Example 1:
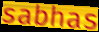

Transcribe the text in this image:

sabhas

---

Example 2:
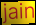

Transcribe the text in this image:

jain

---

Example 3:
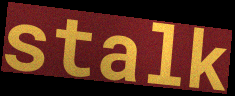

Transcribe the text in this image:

stalk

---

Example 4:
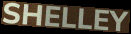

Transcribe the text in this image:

SHELLEY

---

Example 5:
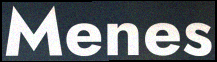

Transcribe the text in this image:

Menes